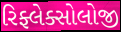
રિફ્લેક્સોલોજી